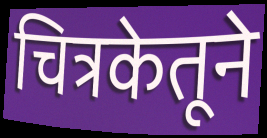
चित्रकेतूने